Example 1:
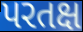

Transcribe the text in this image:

પરતક્ષ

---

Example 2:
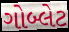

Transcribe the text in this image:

ગોબ્લેટ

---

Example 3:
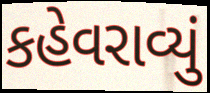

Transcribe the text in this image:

કહેવરાવ્યું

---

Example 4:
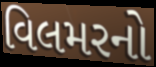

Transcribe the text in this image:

વિલમરનો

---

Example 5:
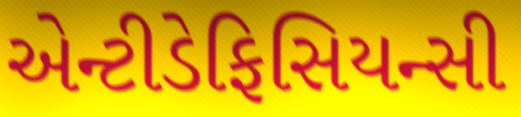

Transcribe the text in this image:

એન્ટીડેફિસિયન્સી